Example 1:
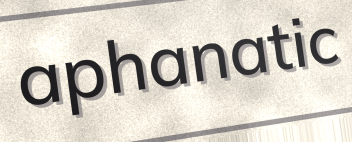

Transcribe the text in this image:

aphanatic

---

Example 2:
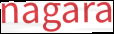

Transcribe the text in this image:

nagara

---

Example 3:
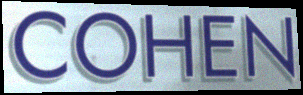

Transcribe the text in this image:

COHEN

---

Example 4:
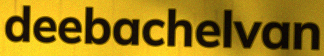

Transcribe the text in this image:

deebachelvan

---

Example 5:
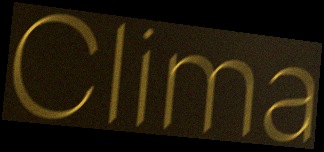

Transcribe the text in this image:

Clima